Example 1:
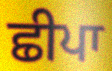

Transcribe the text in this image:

ਛੀਪਾ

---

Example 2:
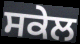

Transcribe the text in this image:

ਸਕੇਲ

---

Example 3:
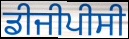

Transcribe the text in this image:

ਡੀਜੀਪੀਸੀ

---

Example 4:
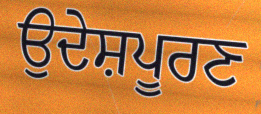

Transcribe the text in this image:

ਉਦੇਸ਼ਪੂਰਣ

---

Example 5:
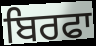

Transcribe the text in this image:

ਬਿਰਫਾ